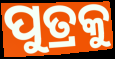
ପୁତ୍ରକୁ